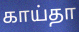
காய்தா